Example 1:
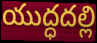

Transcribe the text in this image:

యుద్ధదల్లి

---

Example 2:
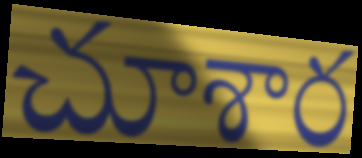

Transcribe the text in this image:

చూశార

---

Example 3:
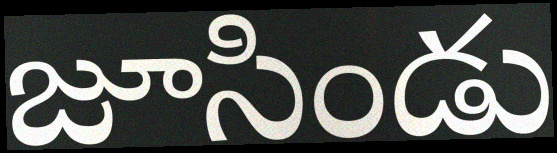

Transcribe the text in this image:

జూసిండు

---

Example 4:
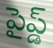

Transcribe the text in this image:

పైప్డ్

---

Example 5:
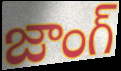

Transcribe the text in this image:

జాంగ్